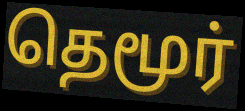
தெமூர்